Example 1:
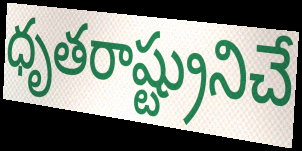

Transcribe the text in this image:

ధృతరాష్ట్రునిచే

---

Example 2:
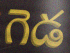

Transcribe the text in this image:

గెడ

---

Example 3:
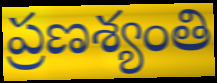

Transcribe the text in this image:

ప్రణశ్యంతి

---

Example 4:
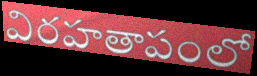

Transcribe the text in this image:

విరహతాపంలో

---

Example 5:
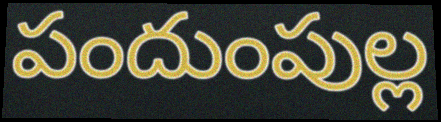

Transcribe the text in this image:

పందుంపుల్ల